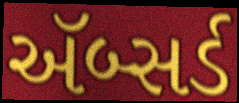
ઍબ્સર્ડ